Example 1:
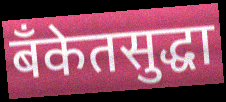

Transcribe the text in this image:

बँकेतसुद्धा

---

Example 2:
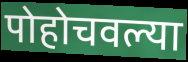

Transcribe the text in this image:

पोहोचवल्या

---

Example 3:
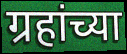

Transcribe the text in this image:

ग्रहांच्या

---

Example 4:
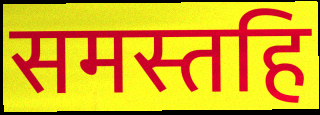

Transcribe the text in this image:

समस्तहि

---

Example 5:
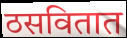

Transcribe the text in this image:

ठसवितात